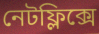
নেটফ্লিক্সে